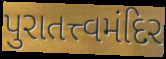
પુરાતત્ત્વમંદિર